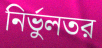
নির্ভুলতর